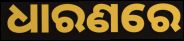
ଧାରଣରେ